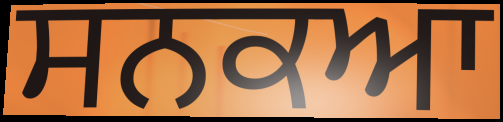
ਸਨਕਆ